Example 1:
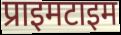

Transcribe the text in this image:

प्राइमटाइम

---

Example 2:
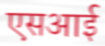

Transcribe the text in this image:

एसआई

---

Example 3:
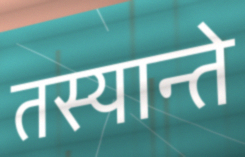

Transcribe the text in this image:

तस्यान्ते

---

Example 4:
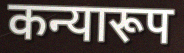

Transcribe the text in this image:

कन्यारूप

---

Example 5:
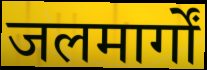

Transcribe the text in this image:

जलमार्गों